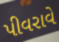
પીવરાવે